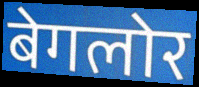
बेगलोर